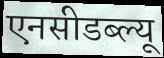
एनसीडब्ल्यू